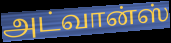
அட்வான்ஸ்